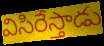
విసిరేస్తాడు